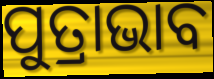
ପୁତ୍ରାଭାବ